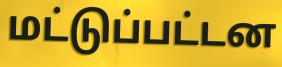
மட்டுப்பட்டன